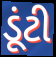
ડૂંટી